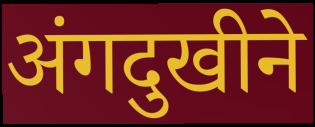
अंगदुखीने